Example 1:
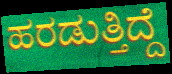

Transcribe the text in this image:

ಹರಡುತ್ತಿದ್ದೆ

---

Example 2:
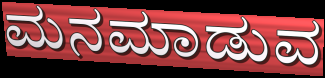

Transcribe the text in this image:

ಮನಮಾಡುವ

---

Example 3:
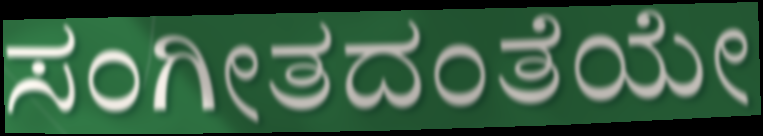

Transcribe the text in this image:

ಸಂಗೀತದಂತೆಯೇ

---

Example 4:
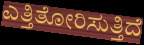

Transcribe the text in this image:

ಎತ್ತಿತೋರಿಸುತ್ತಿದೆ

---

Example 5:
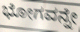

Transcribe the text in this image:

ಭೋಗವನ್ನೇ